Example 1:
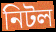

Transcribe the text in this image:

নিটল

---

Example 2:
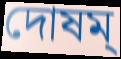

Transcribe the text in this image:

দোষম্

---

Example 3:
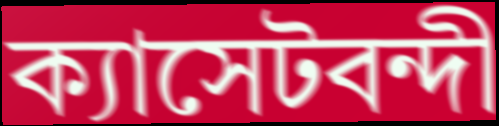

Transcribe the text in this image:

ক্যাসেটবন্দী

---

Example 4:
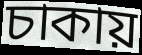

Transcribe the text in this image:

চাকায়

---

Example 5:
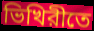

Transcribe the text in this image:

ভিখিরীতে